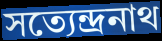
সত্যেন্দ্রনাথ